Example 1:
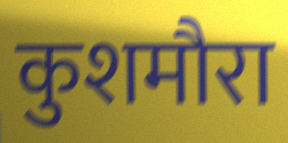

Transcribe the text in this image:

कुशमौरा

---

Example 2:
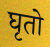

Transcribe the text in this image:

घृतो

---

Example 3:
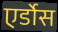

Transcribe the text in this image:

एर्डोस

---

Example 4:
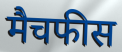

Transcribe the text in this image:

मैचफीस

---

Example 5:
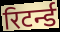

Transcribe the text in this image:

रिटर्न्ड